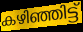
കഴിഞ്ഞിട്ട്